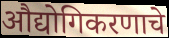
औद्योगिकरणाचे